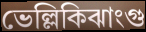
ভেল্লিকিঝাংগু